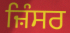
ਜ਼ਿੰਸਰ